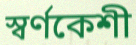
স্বর্ণকেশী